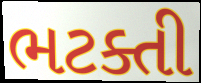
ભટક્તી